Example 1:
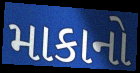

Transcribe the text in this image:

માકાનો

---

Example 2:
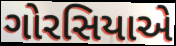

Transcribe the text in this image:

ગોરસિયાએ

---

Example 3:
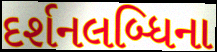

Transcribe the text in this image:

દર્શનલબ્ધિના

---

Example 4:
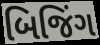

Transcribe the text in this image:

બિજિંગ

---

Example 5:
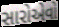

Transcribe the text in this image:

સારોએવો